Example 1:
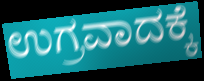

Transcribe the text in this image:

ಉಗ್ರವಾದಕ್ಕೆ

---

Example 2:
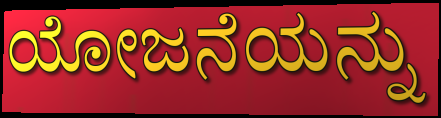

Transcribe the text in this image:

ಯೋಜನೆಯನ್ನು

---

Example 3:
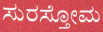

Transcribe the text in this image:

ಸುರಸ್ತೋಮ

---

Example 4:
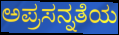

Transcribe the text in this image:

ಅಪ್ರಸನ್ನತೆಯ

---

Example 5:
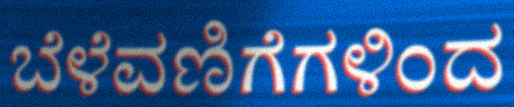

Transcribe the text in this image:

ಬೆಳೆವಣಿಗೆಗಳಿಂದ